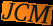
JCM